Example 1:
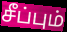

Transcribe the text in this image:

சீப்பும்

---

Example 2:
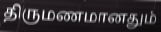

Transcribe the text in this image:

திருமணமானதும்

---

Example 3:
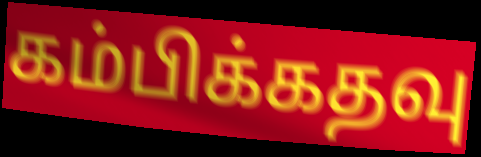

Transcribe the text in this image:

கம்பிக்கதவு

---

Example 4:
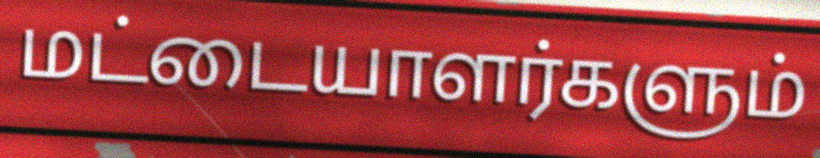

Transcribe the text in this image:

மட்டையாளர்களும்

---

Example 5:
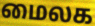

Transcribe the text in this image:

மைலக